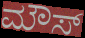
ಮೌಸ್